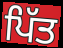
ਪਿੱਤ